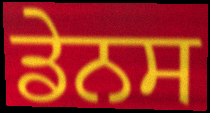
ਡੇਨਸ